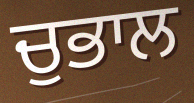
ਚੁਭਾਲ